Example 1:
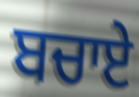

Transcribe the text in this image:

ਬਚਾਏ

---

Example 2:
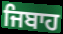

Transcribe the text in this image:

ਜਿਬਾਹ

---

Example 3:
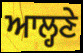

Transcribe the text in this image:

ਆਲ੍ਹਣੇ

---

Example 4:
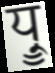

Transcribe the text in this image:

ਧ੍ਰੂ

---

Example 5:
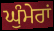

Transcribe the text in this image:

ਘੁੰਮੇਰਾਂ